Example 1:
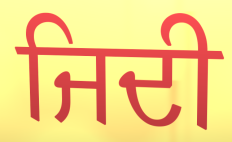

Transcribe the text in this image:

ਜਿਦੀ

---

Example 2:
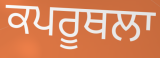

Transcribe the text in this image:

ਕਪਰੂਥਲਾ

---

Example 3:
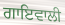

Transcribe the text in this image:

ਗਾਇਵਾਲੀ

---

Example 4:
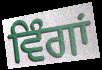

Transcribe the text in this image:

ਵਿੰਗਾਂ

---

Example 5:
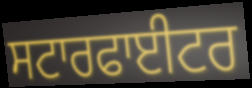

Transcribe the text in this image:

ਸਟਾਰਫਾਈਟਰ